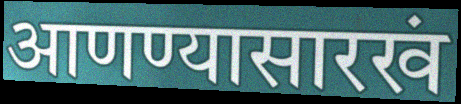
आणण्यासारखं